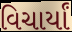
વિચાર્યાં